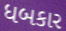
ધબકાર